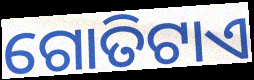
ଗୋତିଟାଏ